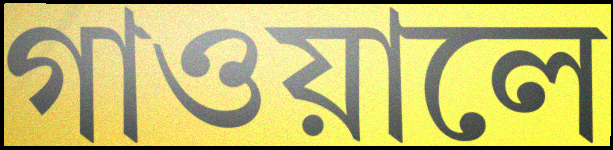
গাওয়ালে